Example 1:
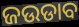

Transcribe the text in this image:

ଜଉଡାବ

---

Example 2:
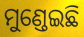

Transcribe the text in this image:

ମୁଣ୍ଡେଇଛି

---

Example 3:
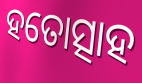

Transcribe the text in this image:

ହତୋତ୍ସାହ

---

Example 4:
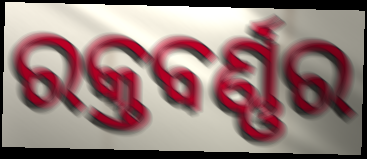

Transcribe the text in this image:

ରକ୍ତବର୍ଣ୍ଣର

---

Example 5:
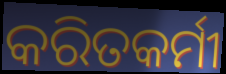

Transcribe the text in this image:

କରିତକର୍ମୀ